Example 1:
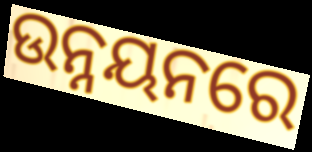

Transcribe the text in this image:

ଉନ୍ନୟନରେ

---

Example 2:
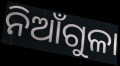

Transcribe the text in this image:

ନିଆଁଗୁଳା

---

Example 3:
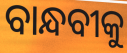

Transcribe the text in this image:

ବାନ୍ଧବୀକୁ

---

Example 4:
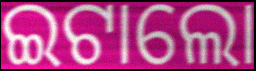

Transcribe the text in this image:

ଇଟାଲୋ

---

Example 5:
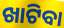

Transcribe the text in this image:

ଖାଟିବା